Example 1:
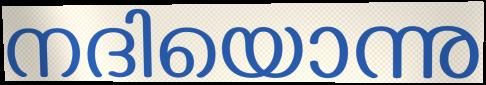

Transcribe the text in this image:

നദിയൊന്നു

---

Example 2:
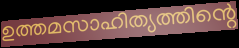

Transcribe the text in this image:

ഉത്തമസാഹിത്യത്തിന്റെ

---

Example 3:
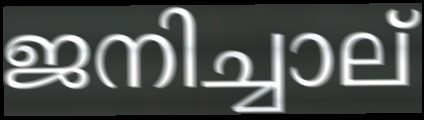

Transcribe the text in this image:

ജനിച്ചാല്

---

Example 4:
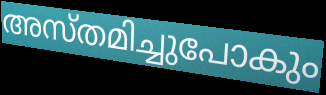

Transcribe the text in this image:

അസ്തമിച്ചുപോകും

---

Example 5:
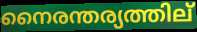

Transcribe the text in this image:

നൈരന്തര്യത്തില്